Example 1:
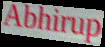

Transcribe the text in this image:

Abhirup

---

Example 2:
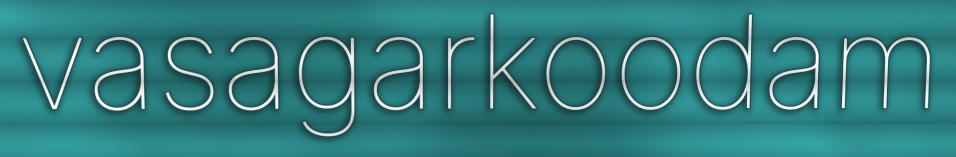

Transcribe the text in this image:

vasagarkoodam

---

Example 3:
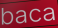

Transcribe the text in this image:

baca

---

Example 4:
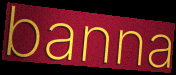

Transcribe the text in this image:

banna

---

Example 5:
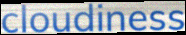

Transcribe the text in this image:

cloudiness